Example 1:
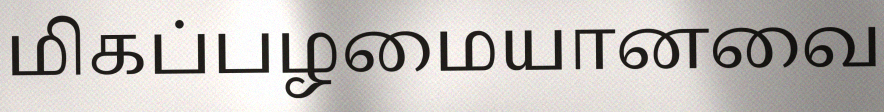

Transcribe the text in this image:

மிகப்பழமையானவை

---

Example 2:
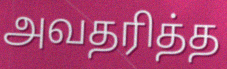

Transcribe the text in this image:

அவதரித்த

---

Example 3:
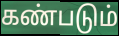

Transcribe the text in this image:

கண்படும்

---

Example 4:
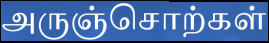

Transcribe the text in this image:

அருஞ்சொற்கள்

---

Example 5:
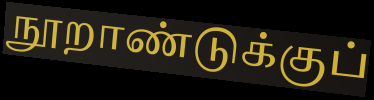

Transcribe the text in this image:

நூறாண்டுக்குப்